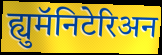
ह्युमॅनिटेरिअन